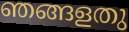
ഞങ്ങളതു